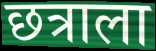
छत्राला